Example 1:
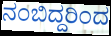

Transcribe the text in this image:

ನಂಬಿದ್ದರಿಂದ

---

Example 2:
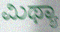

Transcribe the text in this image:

ಮಿಥ್ಯಾ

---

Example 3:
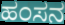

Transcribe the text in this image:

ಹಂಸನ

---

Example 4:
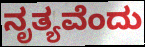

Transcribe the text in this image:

ನೃತ್ಯವೆಂದು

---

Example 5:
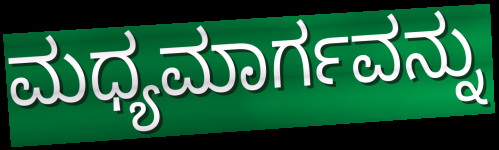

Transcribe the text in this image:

ಮಧ್ಯಮಾರ್ಗವನ್ನು